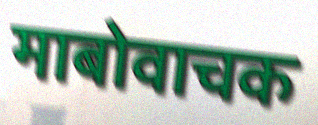
माबोवाचक